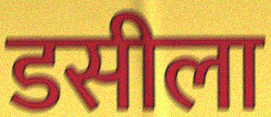
डसीला